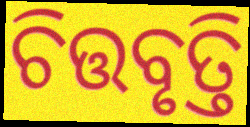
ଚିତ୍ତବୃତ୍ତି